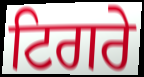
ਟਿਗਰੇ